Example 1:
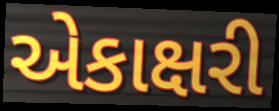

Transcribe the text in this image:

એકાક્ષરી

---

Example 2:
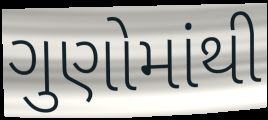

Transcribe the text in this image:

ગુણોમાંથી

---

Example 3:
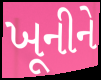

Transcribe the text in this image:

ખૂનીને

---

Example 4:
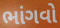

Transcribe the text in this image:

ભાંગવો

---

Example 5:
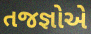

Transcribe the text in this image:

તજજ્ઞોએ